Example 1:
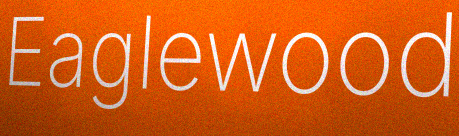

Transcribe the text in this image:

Eaglewood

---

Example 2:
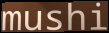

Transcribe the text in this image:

mushi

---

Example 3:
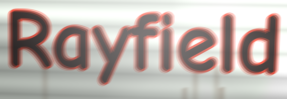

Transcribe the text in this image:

Rayfield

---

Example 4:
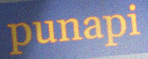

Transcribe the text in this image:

punapi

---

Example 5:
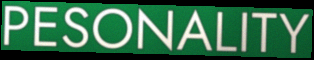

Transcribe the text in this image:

PESONALITY